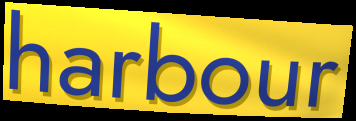
harbour